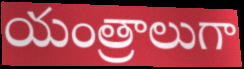
యంత్రాలుగా